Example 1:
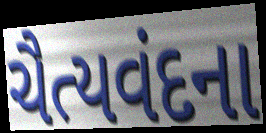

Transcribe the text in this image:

ચૈત્યવંદના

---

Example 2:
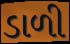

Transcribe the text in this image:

ડાળી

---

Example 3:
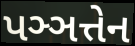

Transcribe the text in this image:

પઞ્ઞત્તેન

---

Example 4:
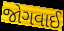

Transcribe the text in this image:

જોગવાઈ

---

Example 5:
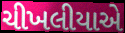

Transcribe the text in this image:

ચીખલીયાએ